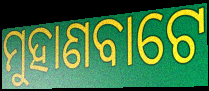
ମୁହାଣବାଟେ